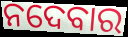
ନଦେବାର